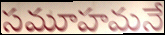
సమూహమనే